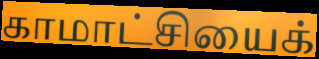
காமாட்சியைக்